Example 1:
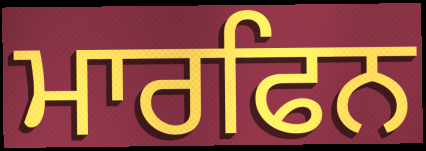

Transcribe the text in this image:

ਮਾਰਫਿਨ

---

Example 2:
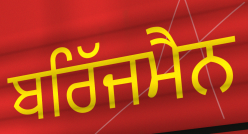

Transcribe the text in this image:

ਬਰਿੱਜਮੈਨ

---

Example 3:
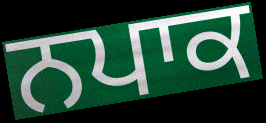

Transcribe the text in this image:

ਨਪਾਕ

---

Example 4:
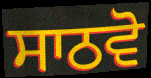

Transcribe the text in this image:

ਸਾਠਵੋ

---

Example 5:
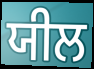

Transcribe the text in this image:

ਯੀਲ